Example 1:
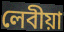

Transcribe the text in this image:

লেবীয়া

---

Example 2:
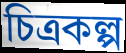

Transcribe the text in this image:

চিত্ৰকল্প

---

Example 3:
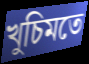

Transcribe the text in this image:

খুচিমতে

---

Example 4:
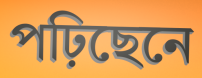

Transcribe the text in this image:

পঢ়িছেনে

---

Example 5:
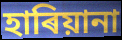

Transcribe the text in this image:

হাৰিয়ানা